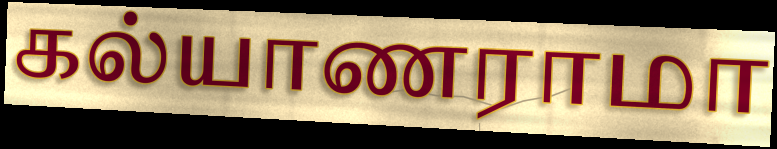
கல்யாணராமா